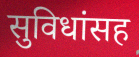
सुविधांसह